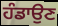
ਹੰਡਾਉਣ